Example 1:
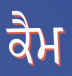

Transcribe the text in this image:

ਕੈਮ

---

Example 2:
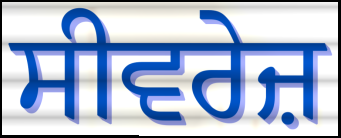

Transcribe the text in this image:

ਸੀਵਰੇਜ਼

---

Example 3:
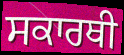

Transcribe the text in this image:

ਸਕਾਰਥੀ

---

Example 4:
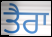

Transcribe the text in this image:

ਤੈਰਾ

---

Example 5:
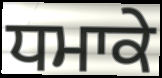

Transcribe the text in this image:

ਧਮਾਕੇ